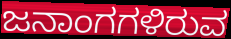
ಜನಾಂಗಗಳಿರುವ